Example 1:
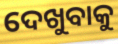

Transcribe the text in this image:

ଦେଖୁବାକୁ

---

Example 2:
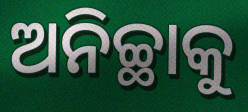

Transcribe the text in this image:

ଅନିଚ୍ଛାକୁ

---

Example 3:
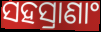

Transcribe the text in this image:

ସହସ୍ରାଣାଂ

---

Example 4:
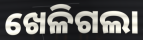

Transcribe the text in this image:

ଖେଳିଗଲା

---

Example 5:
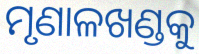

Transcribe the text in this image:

ମୃଣାଳଖଣ୍ଡକୁ